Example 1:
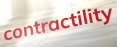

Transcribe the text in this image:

contractility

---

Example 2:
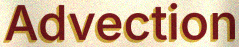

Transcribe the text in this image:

Advection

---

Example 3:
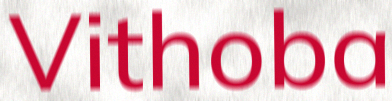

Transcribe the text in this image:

Vithoba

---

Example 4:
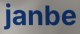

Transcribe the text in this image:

janbe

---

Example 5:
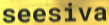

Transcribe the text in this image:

seesiva